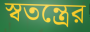
স্বতন্ত্রের